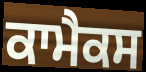
ਕਾਮੈਕਸ